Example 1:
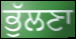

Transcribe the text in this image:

ਭੁੱਲਣਾ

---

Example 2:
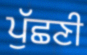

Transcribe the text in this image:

ਪੁੱਛਣੀ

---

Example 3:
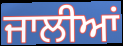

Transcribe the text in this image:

ਜਾਲੀਆਂ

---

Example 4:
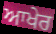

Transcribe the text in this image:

ਆਖੇਰ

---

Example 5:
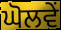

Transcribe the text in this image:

ਘੋਲਵੇਂ